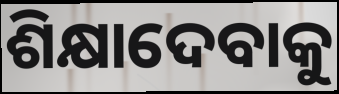
ଶିକ୍ଷାଦେବାକୁ